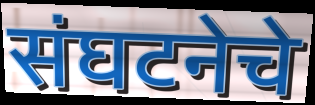
संघटनेचे